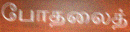
போதலைத்